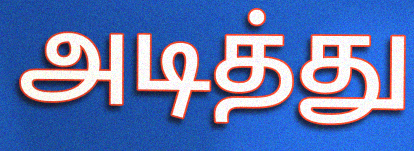
அடித்து